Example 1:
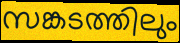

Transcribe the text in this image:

സങ്കടത്തിലും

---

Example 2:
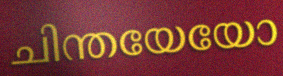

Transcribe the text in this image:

ചിന്തയേയോ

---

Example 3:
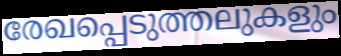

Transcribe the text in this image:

രേഖപ്പെടുത്തലുകളും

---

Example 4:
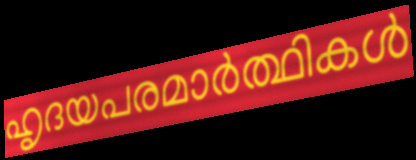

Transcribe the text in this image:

ഹൃദയപരമാർത്ഥികൾ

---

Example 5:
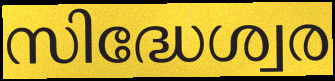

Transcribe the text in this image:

സിദ്ധേശ്വര